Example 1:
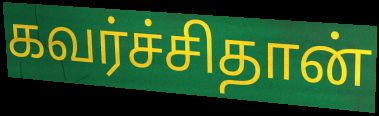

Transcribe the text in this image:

கவர்ச்சிதான்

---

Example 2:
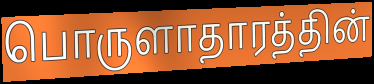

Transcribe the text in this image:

பொருளாதாரத்தின்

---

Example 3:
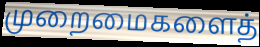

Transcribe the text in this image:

முறைமைகளைத்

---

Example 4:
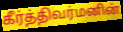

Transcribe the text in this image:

கீர்த்திவர்மனின்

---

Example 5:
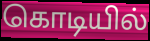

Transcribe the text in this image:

கொடியில்